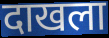
दाखला